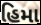
હિમા